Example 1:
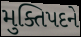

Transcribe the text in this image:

મુક્તિપદને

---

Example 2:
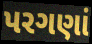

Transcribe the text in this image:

પરગણાં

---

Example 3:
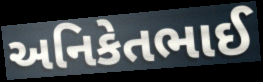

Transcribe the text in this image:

અનિકેતભાઈ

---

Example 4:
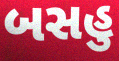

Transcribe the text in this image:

બસહુ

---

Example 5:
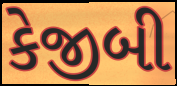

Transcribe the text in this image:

કેજીબી